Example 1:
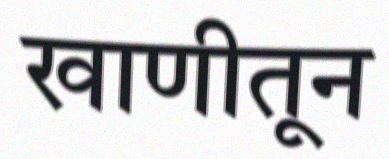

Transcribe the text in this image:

खाणीतून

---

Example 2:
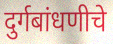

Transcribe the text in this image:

दुर्गबांधणीचे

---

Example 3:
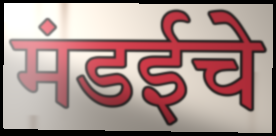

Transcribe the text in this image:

मंडईचे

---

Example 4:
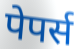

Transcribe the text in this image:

पेपर्स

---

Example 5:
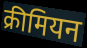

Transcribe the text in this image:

क्रीमियन